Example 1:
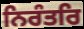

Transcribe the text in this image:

ਨਿਰੰਤਰਿ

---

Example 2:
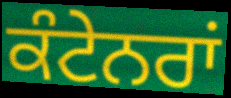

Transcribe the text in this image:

ਕੰਟੇਨਰਾਂ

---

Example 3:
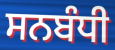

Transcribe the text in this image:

ਸਨਬੰਧੀ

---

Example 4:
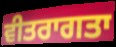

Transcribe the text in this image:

ਵੀਤਰਾਗਤਾ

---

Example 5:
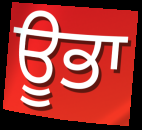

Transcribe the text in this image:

ਊਭਾ